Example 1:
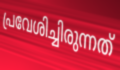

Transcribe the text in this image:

പ്രവേശിച്ചിരുന്നത്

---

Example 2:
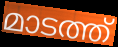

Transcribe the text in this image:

മാടത്ത്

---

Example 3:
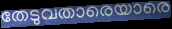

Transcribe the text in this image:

തേടുവതാരെയാരെ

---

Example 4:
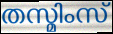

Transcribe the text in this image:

തസ്മിംസ്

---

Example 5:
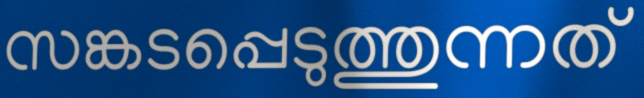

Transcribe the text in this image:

സങ്കടപ്പെടുത്തുന്നത്